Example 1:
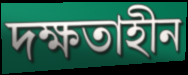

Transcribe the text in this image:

দক্ষতাহীন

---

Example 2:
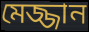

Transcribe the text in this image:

মেজ্জান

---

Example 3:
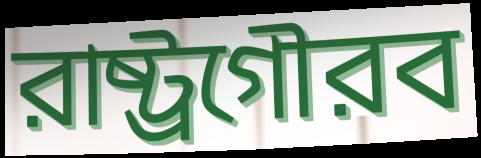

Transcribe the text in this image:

রাষ্ট্রগৌরব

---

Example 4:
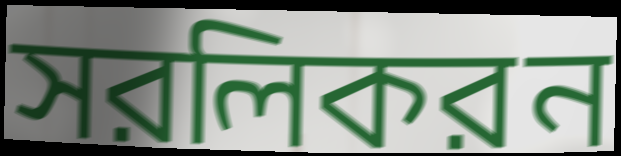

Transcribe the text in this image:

সরলিকরন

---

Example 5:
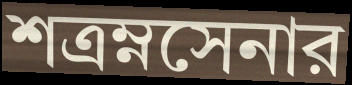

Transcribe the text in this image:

শত্রম্নসেনার